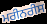
ਮਰੀਨਰੀਸ